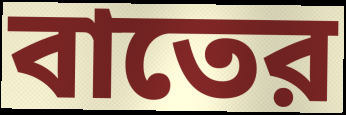
বাতের